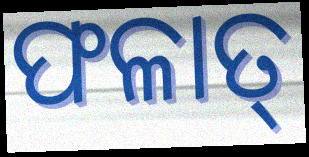
ଫଳାତ୍